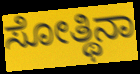
ಸೋತ್ಥಿನಾ